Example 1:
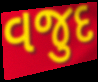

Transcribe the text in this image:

વજુદ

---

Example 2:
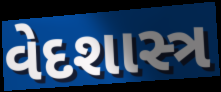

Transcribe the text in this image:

વેદશાસ્ત્ર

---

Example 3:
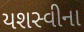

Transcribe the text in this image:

યશસ્વીના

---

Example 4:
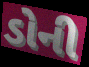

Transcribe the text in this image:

ડોની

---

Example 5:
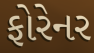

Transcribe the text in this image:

ફોરેનર